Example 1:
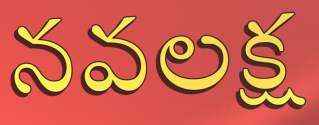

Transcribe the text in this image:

నవలక్ష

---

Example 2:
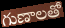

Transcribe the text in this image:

గుణాలతో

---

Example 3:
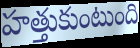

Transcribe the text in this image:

హత్తుకుంటుంది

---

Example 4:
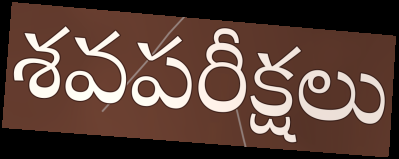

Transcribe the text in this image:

శవపరీక్షలు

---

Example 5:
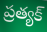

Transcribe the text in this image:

ప్రత్యక్